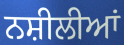
ਨਸ਼ੀਲੀਆਂ